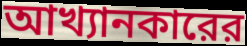
আখ্যানকারের